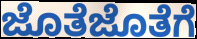
ಜೊತೆಜೊತೆಗೆ